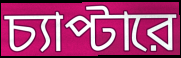
চ্যাপ্টারে